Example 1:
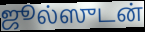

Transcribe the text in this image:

ஜூல்ஸுடன்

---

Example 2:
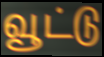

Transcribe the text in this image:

வூட்டு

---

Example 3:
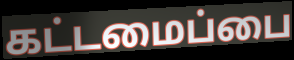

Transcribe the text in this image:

கட்டமைப்பை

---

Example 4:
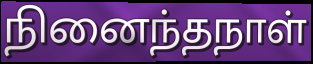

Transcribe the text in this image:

நினைந்தநாள்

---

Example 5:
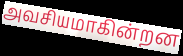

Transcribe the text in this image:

அவசியமாகின்றன